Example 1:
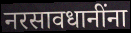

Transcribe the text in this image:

नरसावधानींना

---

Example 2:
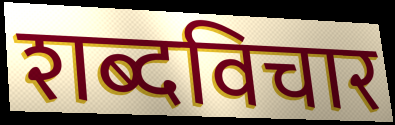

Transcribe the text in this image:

शब्दविचार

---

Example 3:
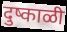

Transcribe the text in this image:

दुष्काळी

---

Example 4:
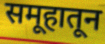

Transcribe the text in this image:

समूहातून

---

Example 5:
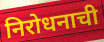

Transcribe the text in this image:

निरोधनाची